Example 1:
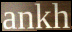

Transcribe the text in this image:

ankh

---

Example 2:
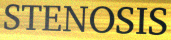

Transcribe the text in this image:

STENOSIS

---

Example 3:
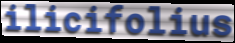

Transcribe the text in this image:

ilicifolius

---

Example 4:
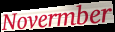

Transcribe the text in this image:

Novermber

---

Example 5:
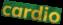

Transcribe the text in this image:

cardio